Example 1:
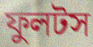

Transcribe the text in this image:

ফুলটস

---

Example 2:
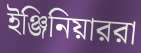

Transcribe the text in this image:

ইঞ্জিনিয়াররা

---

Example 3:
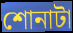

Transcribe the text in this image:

শোনাটা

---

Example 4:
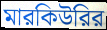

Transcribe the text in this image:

মারকিউরির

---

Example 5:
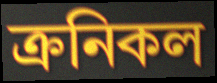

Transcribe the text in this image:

ক্রনিকল